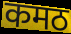
कमठ